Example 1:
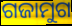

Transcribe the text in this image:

ଗଜାମୁଗ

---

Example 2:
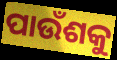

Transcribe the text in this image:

ପାଉଁଶକୁ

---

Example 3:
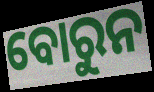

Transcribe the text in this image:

ବୋରୁନ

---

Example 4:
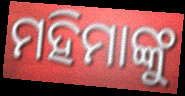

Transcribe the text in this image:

ମହିମାଙ୍କୁ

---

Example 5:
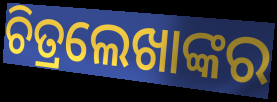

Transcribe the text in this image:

ଚିତ୍ରଲେଖାଙ୍କର